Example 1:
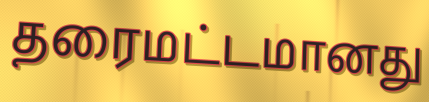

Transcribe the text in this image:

தரைமட்டமானது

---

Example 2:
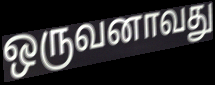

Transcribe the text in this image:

ஒருவனாவது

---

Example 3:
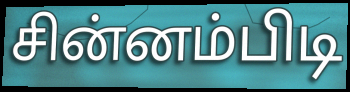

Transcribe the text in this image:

சின்னம்பிடி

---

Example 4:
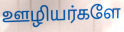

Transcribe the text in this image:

ஊழியர்களே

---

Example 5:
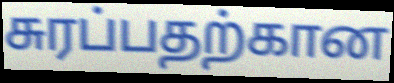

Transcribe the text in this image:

சுரப்பதற்கான